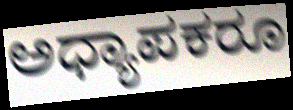
ಅಧ್ಯಾಪಕರೂ